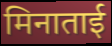
मिनाताई